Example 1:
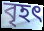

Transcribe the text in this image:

বৃহৎ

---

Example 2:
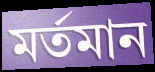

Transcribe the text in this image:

মর্তমান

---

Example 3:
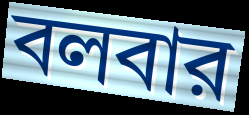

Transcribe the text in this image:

বলবার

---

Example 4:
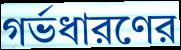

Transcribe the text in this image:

গর্ভধারণের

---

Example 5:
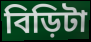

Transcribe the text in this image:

বিড়িটা